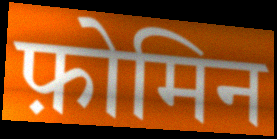
फ़ोमिन